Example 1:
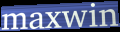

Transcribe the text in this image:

maxwin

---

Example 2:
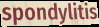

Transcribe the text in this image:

spondylitis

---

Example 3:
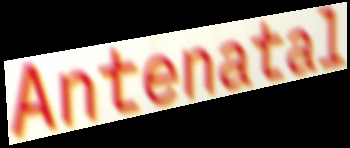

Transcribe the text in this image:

Antenatal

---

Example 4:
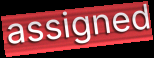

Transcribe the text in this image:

assigned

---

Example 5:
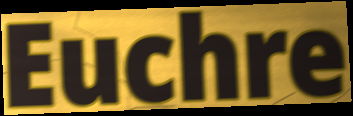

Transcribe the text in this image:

Euchre